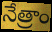
నేత్రాం